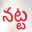
నట్ట